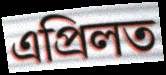
এপ্ৰিলত